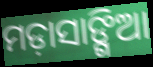
ମଡ଼ାସାଙ୍ଗିଆ